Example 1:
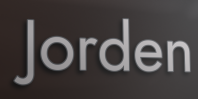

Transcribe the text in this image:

Jorden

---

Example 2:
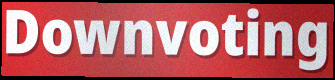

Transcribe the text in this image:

Downvoting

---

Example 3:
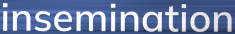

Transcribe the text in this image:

insemination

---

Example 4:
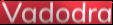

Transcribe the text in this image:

Vadodra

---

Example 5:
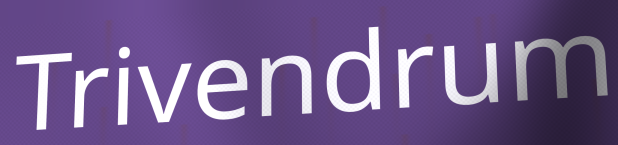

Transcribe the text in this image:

Trivendrum